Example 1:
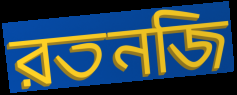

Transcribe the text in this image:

রতনজি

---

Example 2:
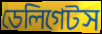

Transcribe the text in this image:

ডেলিগেটস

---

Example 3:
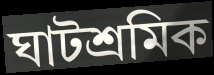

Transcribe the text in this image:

ঘাটশ্রমিক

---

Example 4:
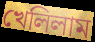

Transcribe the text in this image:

খেলিলাম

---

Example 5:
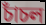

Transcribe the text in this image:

চাঁচল